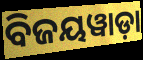
ବିଜୟୱାଡ଼ା